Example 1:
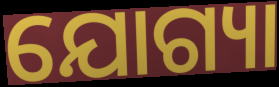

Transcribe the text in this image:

ଯୋଗ୍ୟା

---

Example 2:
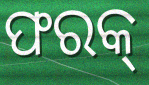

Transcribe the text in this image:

ଫରକ୍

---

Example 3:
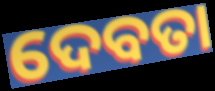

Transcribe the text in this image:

ଦେବତା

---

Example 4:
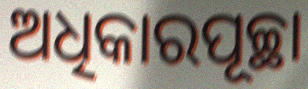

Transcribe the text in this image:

ଅଧିକାରପୂଚ୍ଛା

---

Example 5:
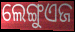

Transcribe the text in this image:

ଲେଙ୍ଗୁଏଜ